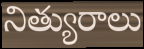
నిత్యురాలు